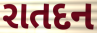
રાતદન